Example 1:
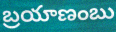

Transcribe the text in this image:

బ్రయాణంబు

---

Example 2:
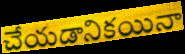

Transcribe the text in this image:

చేయడానికయినా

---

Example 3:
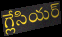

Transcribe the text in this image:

గ్లేసియర్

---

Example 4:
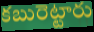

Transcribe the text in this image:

కబురెట్టారు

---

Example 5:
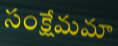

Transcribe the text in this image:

సంక్షేమమా